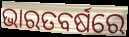
ଭାରତବର୍ଷରେ